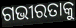
ଗଭୀରତାକୁ